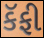
કૅફી